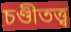
চণ্ডীতত্ত্ব